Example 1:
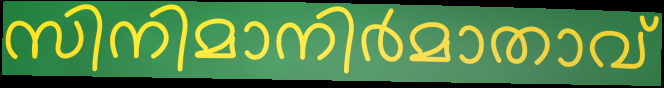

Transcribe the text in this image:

സിനിമാനിർമാതാവ്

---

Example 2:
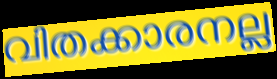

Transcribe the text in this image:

വിതക്കാരനല്ല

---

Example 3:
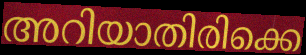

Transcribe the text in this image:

അറിയാതിരിക്കെ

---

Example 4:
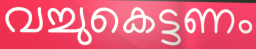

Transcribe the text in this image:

വച്ചുകെട്ടണം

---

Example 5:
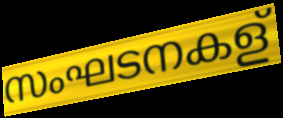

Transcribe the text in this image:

സംഘടനകള്